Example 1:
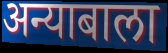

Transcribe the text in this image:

अन्याबाला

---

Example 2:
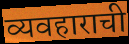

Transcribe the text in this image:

व्यवहाराची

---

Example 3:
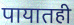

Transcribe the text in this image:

पायातही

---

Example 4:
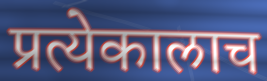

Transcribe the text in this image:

प्रत्येकालाच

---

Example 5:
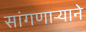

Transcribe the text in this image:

सांगणार्‍याने